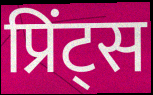
प्रिंट्स